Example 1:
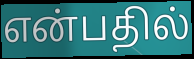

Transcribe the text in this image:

என்பதில்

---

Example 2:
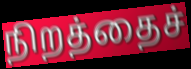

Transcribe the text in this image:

நிறத்தைச்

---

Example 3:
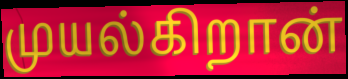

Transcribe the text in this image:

முயல்கிறான்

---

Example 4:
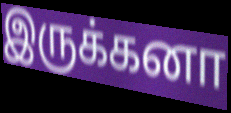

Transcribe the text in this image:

இருக்கனா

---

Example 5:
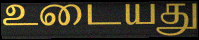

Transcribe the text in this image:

உடையது